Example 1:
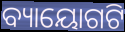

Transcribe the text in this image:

ବ୍ୟାୟୋଗଟି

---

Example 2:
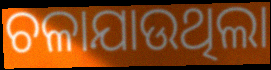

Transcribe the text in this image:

ଚଳାଯାଉଥିଲା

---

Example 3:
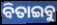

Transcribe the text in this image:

ବିତାଇବୁ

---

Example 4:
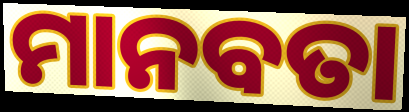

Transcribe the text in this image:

ମାନବତା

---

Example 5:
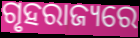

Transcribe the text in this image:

ଗୃହରାଜ୍ୟରେ